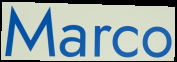
Marco